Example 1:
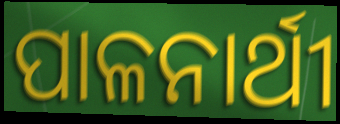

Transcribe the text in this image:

ପାଳନାର୍ଥୀ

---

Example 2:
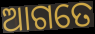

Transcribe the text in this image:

ଆଗତେ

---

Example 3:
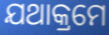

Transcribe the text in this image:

ଯଥାକ୍ରମେ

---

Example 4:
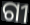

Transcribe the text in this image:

ଗୀ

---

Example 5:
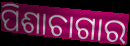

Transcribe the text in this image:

ପିଶାଚାଗାର